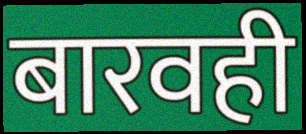
बारवही